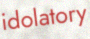
idolatory